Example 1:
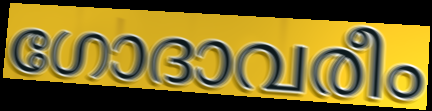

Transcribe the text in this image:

ഗോദാവരീം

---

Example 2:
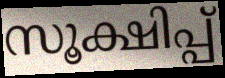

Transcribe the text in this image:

സൂക്ഷിപ്പ്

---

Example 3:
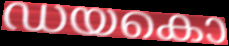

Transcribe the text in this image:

ഡയകൊ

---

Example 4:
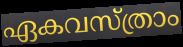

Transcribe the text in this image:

ഏകവസ്ത്രാം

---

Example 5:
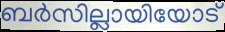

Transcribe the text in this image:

ബർസില്ലായിയോട്